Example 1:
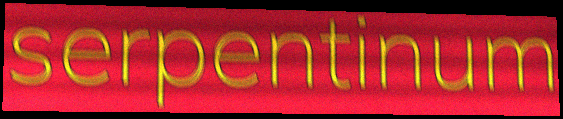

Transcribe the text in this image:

serpentinum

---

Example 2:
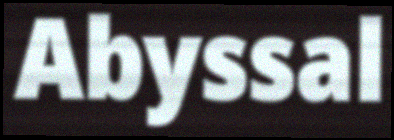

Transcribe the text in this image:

Abyssal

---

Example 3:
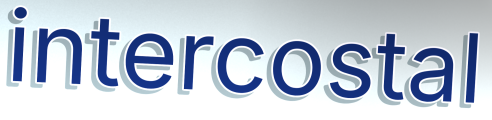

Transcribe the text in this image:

intercostal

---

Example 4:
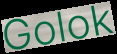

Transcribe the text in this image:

Golok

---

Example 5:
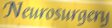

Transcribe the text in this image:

Neurosurgery